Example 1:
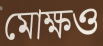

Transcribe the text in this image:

মোক্ষও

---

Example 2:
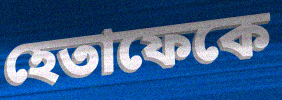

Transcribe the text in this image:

হেতাফেকে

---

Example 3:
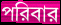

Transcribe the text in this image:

পরিবার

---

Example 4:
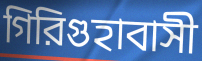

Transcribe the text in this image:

গিরিগুহাবাসী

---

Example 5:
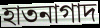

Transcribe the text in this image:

হাতনাগাদ